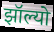
झॉल्यो